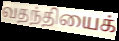
வதந்தியைக்